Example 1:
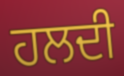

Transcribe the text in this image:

ਹਲਦੀ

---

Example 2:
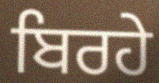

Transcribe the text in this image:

ਬਿਰਹੇ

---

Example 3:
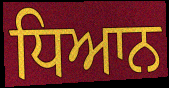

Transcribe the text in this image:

ਧਿਆਨ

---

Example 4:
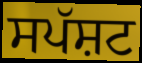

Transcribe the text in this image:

ਸਪੱਸ਼ਟ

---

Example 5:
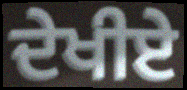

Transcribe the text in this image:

ਦੇਖੀਏ